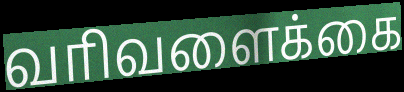
வரிவளைக்கை